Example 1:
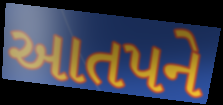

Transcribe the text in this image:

આતપને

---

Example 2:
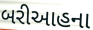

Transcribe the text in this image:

બરીઆહના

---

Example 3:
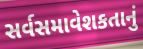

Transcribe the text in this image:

સર્વસમાવેશકતાનું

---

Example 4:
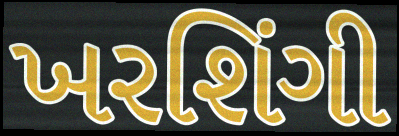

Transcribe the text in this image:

ખરશિંગી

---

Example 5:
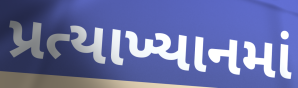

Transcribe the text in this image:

પ્રત્યાખ્યાનમાં